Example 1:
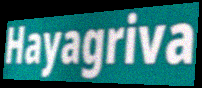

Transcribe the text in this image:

Hayagriva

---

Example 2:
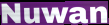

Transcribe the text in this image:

Nuwan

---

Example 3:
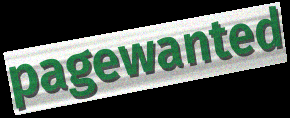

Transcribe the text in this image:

pagewanted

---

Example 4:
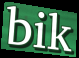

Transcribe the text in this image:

bik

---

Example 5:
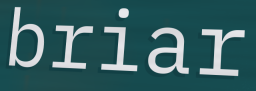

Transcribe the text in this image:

briar